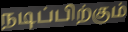
நடிப்பிற்கும்